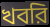
খবরি